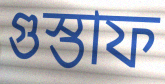
গুস্তাফ